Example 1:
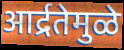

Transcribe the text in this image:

आर्द्रतेमुळे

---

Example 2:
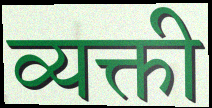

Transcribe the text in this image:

व्यक्ती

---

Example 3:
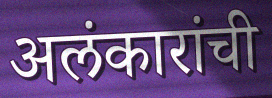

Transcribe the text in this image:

अलंकारांची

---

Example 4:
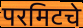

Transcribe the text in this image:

परमिटचे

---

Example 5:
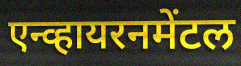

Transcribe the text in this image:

एन्व्हायरनमेंटल